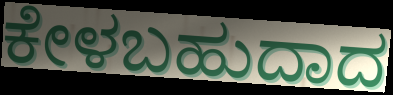
ಕೇಳಬಹುದಾದ